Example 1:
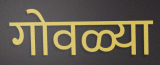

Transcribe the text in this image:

गोवळ्या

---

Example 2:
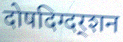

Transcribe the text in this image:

दोषदिग्दर्शन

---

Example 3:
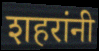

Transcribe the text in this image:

शहरांनी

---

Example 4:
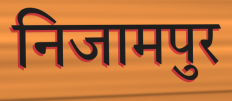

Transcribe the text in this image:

निजामपुर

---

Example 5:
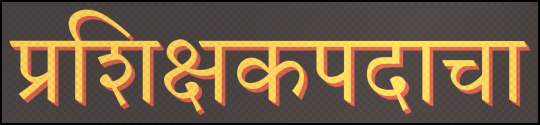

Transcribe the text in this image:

प्रशिक्षकपदाचा